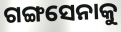
ଗଙ୍ଗସେନାକୁ